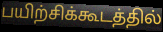
பயிற்சிக்கூடத்தில்